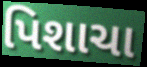
પિશાચા